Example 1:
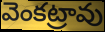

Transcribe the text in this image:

వెంకట్రావు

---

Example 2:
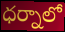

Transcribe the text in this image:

ధర్నాలో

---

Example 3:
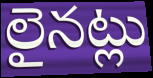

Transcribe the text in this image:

లైనట్లు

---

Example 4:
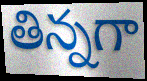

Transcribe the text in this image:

తిన్నగా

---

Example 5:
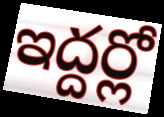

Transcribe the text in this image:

ఇద్దర్లో